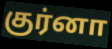
குர்னா